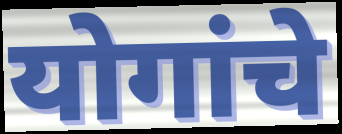
योगांचे